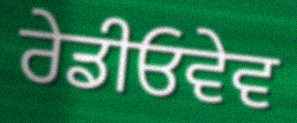
ਰੇਡੀਓਵੇਵ